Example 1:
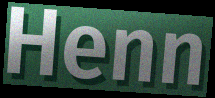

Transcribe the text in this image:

Henn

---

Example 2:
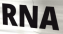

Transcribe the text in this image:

RNA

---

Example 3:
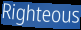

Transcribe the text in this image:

Righteous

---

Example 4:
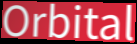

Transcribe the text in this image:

Orbital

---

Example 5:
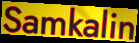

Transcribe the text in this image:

Samkalin